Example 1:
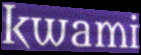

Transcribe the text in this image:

kwami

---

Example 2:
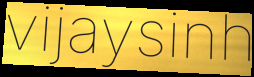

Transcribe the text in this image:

vijaysinh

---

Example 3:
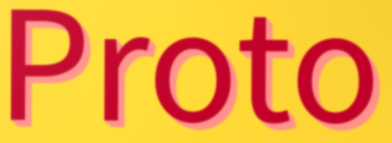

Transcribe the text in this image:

Proto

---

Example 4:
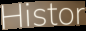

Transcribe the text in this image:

Histor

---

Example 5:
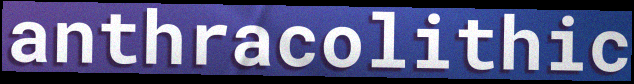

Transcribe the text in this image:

anthracolithic